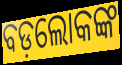
ବଡ଼ଲୋକଙ୍କ